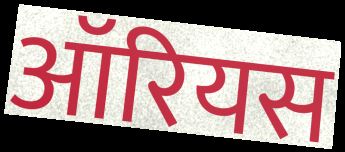
ऑरियस